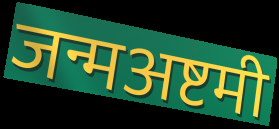
जन्मअष्टमी